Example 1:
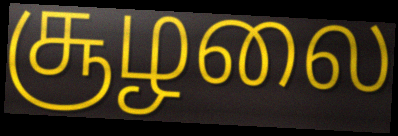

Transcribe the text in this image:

சூழலை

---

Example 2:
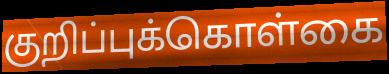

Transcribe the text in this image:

குறிப்புக்கொள்கை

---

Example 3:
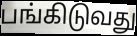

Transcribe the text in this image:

பங்கிடுவது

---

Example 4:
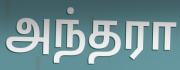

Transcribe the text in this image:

அந்தரா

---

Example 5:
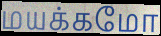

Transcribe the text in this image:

மயக்கமோ